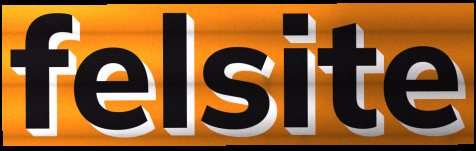
felsite